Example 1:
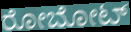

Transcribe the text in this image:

ರೋಬೋಟ್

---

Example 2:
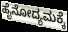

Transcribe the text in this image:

ಹೈನೋದ್ಯಮಕ್ಕೆ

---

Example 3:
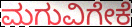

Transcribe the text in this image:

ಮಗುವಿಗೇಕೆ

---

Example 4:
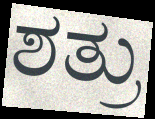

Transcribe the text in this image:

ಶತ್ರು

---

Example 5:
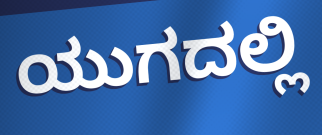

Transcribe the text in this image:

ಯುಗದಲ್ಲಿ